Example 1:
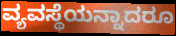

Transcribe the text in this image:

ವ್ಯವಸ್ಥೆಯನ್ನಾದರೂ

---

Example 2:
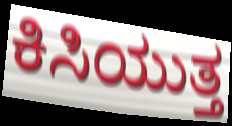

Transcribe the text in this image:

ಕಿಸಿಯುತ್ತ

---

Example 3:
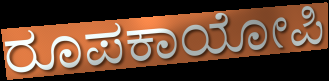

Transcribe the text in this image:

ರೂಪಕಾಯೋಪಿ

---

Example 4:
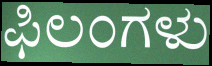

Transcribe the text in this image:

ಫಿಲಂಗಳು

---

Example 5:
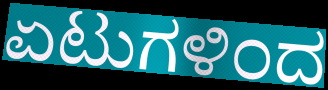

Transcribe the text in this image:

ಏಟುಗಳಿಂದ